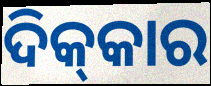
ଦିକ୍‌କାର